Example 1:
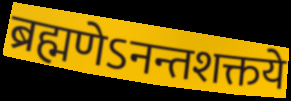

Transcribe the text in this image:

ब्रह्मणेऽनन्तशक्तये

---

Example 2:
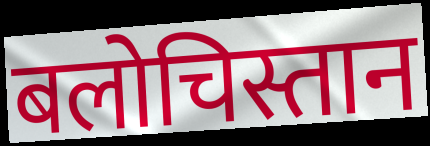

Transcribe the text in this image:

बलोचिस्तान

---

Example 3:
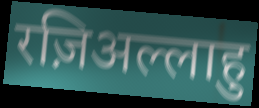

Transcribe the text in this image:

रज़िअल्लाहु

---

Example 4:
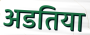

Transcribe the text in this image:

अडतिया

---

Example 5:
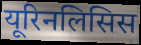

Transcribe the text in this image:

यूरिनलिसिस